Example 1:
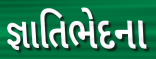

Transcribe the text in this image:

જ્ઞાતિભેદના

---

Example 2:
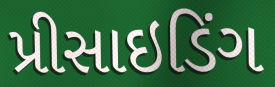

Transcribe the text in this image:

પ્રીસાઇડિંગ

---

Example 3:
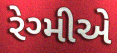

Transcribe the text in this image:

રેગ્મીએ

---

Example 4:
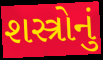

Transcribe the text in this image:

શસ્ત્રોનું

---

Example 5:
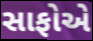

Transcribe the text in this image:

સાફોએ